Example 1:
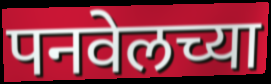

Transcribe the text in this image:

पनवेलच्या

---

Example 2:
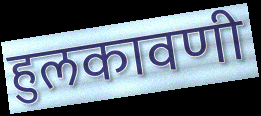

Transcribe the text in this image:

हुलकावणी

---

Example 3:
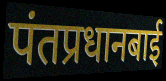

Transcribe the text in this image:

पंतप्रधानबाई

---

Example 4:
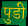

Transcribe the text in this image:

पुडी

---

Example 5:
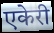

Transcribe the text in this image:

एकेरी